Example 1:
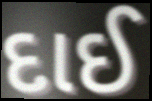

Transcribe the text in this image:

દાઈ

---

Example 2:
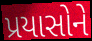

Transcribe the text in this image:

પ્રયાસોને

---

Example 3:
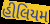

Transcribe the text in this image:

હીલિયમ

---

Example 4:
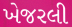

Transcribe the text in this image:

ખેજરલી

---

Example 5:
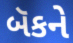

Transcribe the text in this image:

બૅકને